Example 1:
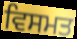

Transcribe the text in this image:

ਵਿਸਮਤ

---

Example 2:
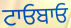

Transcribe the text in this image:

ਟਾਓਬਾਓ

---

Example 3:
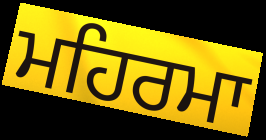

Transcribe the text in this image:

ਮਹਿਰਮਾ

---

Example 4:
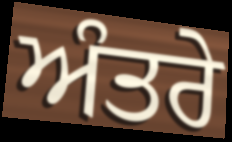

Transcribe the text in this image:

ਅੰਤਰੇ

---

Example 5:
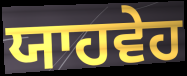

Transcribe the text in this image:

ਯਾਹਵੇਹ